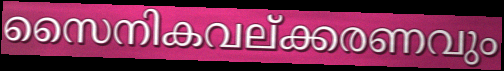
സൈനികവല്ക്കരണവും